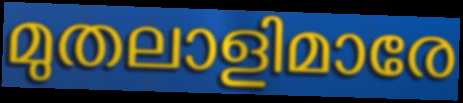
മുതലാളിമാരേ